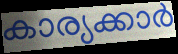
കാര്യക്കാർ